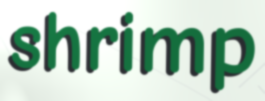
shrimp